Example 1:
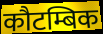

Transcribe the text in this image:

कौटम्बिक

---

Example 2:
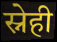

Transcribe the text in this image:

स्नेही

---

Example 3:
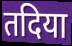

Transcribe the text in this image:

तदिया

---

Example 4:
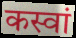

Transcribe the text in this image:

कस्वां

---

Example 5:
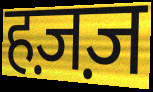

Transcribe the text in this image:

हज़ज़